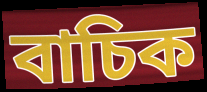
বাচিক